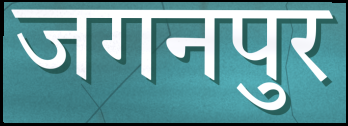
जगनपुर